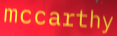
mccarthy